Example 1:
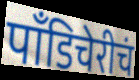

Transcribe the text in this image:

पाँडिचेरीचं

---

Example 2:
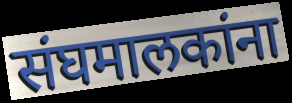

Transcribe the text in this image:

संघमालकांना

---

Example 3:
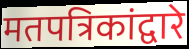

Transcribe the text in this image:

मतपत्रिकांद्वारे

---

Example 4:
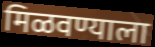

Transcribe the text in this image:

मिळवण्याला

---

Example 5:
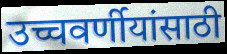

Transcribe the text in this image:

उच्चवर्णीयांसाठी